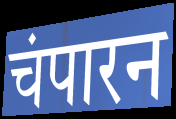
चंपारन